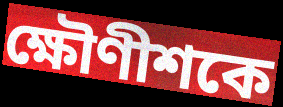
ক্ষৌণীশকে